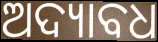
ଅଦ୍ୟାବଧ